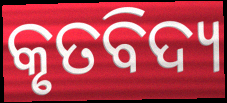
କୃତବିଦ୍ୟ